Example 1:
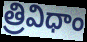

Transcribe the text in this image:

త్రివిధాం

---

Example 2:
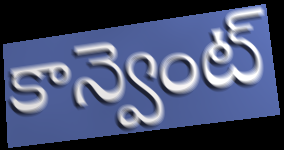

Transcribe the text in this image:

కాన్వెంట్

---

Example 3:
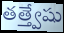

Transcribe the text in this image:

తత్త్వేషు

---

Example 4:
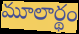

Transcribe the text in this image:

మూలార్థం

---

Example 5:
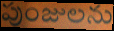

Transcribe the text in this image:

పుంజులను